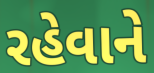
રહેવાને